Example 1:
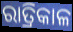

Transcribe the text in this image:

ରାତ୍ରିକାଳ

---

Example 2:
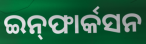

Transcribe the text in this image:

ଇନ୍‌ଫାର୍କସନ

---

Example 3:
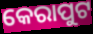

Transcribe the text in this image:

କେରାପୁଟ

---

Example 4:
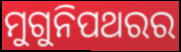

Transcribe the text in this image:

ମୁଗୁନିପଥରର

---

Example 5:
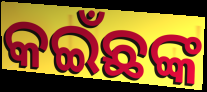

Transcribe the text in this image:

କଇଁଛଙ୍କ